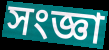
সংজ্ঞা